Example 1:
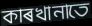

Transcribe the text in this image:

কাৰখানাতে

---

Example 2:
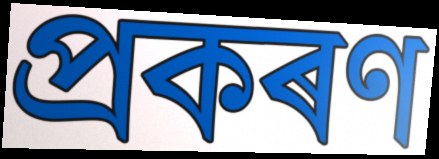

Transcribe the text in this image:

প্ৰকৰণ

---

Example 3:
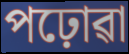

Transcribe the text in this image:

পঢ়োৱা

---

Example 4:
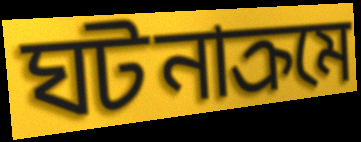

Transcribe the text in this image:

ঘটনাক্ৰমে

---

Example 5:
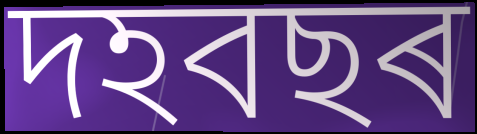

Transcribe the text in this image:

দহবছৰ